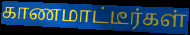
காணமாட்டீர்கள்